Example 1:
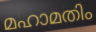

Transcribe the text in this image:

മഹാമതിം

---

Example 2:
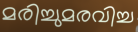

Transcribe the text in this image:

മരിച്ചുമരവിച്ച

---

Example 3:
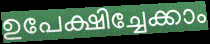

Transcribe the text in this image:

ഉപേക്ഷിച്ചേക്കാം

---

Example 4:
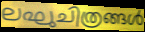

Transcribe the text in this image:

ലഘുചിത്രങ്ങൾ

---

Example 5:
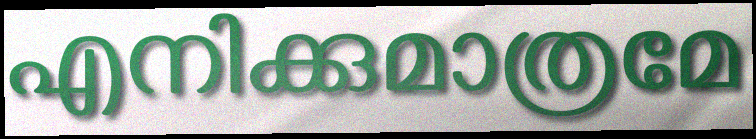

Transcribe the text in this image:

എനിക്കുമാത്രമേ